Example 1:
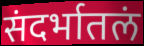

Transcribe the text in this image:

संदर्भातलं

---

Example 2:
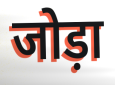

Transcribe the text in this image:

जोड़ा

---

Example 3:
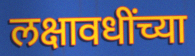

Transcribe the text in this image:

लक्षावधींच्या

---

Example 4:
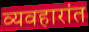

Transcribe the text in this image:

व्यवहारांत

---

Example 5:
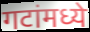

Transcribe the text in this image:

गटांमध्ये